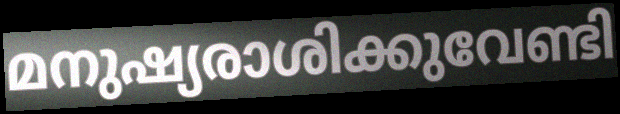
മനുഷ്യരാശിക്കുവേണ്ടി